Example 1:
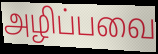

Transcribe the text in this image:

அழிப்பவை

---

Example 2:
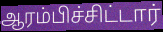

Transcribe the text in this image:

ஆரம்பிச்சிட்டார்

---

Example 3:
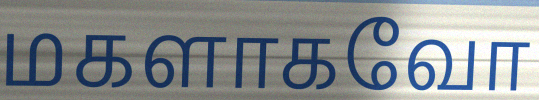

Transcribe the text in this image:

மகளாகவோ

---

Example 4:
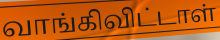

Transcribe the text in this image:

வாங்கிவிட்டாள்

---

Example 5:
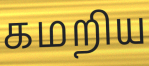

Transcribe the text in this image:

கமறிய